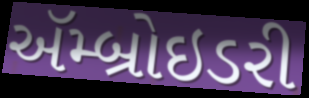
ઍમ્બ્રોઇડરી